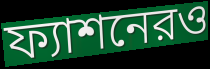
ফ্যাশনেরও